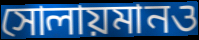
সোলায়মানও